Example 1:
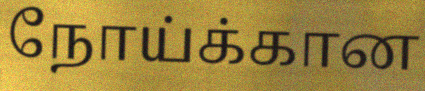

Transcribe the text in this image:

நோய்க்கான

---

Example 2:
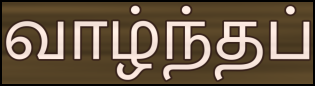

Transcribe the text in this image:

வாழ்ந்தப்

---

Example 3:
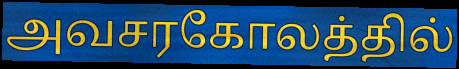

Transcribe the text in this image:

அவசரகோலத்தில்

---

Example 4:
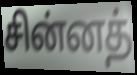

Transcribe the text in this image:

சின்னத்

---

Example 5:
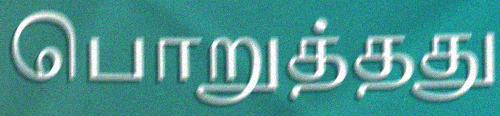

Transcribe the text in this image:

பொறுத்தது